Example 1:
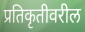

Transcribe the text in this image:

प्रतिकृतीवरील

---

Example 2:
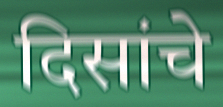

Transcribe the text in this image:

दिसांचे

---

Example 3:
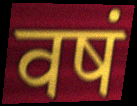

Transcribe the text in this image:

वषं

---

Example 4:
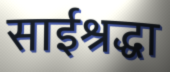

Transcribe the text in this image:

साईश्रद्धा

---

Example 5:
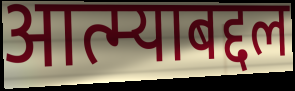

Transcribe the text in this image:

आत्म्याबद्दल